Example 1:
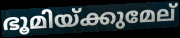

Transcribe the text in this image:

ഭൂമിയ്ക്കുമേല്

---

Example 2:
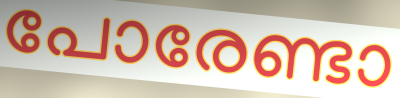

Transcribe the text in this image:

പോരേണ്ടാ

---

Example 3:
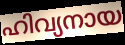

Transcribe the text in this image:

ഹിവ്യനായ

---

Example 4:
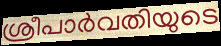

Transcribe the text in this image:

ശ്രീപാർവതിയുടെ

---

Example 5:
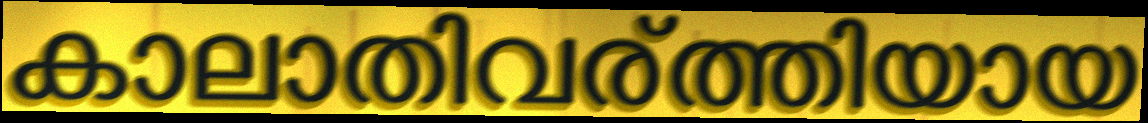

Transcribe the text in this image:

കാലാതിവര്ത്തിയായ